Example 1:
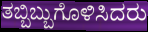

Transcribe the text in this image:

ತಬ್ಬಿಬ್ಬುಗೊಳಿಸಿದರು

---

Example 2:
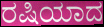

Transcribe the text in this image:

ರಷಿಯಾದ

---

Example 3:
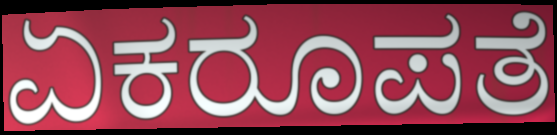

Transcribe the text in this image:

ಏಕರೂಪತೆ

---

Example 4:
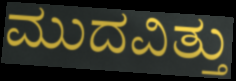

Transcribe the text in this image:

ಮುದವಿತ್ತು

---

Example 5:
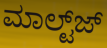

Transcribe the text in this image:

ಮಾಲ್ಟ್‌ಜ್